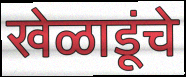
खेळाडूंचे